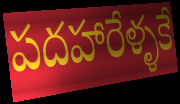
పదహారేళ్ళకే